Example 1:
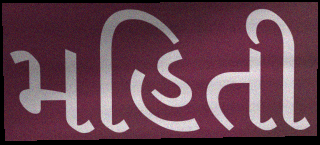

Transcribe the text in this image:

મહિતી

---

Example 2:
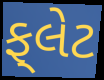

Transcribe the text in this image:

ફ્‌લેટ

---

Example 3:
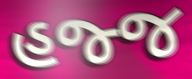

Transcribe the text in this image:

હજ્જ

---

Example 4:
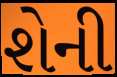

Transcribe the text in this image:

શેની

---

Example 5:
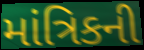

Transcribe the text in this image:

માંત્રિકની